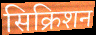
सिक्रिशन